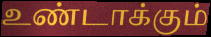
உண்டாக்கும்